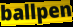
ballpen